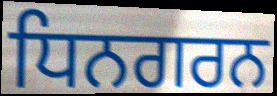
ਧਿਨਗਰਨ